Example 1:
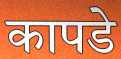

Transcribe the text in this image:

कापडे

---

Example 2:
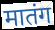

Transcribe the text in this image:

मातंग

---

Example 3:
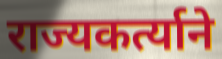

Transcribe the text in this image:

राज्यकर्त्याने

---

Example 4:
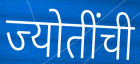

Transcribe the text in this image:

ज्योतींची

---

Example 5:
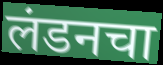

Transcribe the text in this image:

लंडनचा